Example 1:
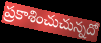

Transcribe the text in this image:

ప్రకాశించుచున్నదో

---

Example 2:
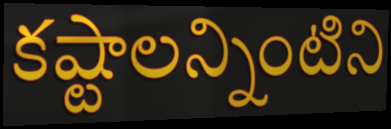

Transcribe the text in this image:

కష్టాలన్నింటిని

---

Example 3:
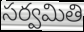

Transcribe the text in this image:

సర్వమితి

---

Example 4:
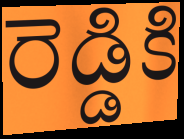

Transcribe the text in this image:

రెడ్డికి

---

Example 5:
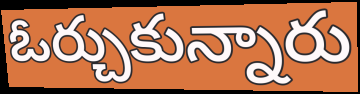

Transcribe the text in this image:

ఓర్చుకున్నారు